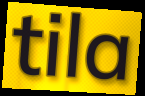
tila